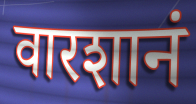
वारशानं